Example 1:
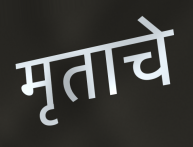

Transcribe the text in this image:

मृताचे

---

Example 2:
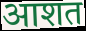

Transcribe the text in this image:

आशत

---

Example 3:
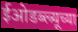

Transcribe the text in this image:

ईओडब्ल्यूच्या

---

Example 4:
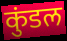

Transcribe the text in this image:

कुंडल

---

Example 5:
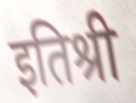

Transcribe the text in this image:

इतिश्री